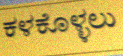
ಕಳಕೊಳ್ಳಲು